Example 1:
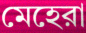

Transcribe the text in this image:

মেহেরা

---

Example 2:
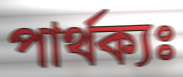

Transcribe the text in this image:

পার্থক্যঃ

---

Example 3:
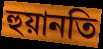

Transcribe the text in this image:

হুয়ানতি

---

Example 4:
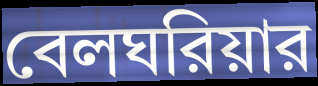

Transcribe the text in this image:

বেলঘরিয়ার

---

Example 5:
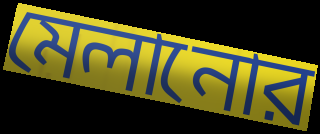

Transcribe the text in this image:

মেলানোর